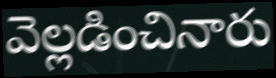
వెల్లడించినారు